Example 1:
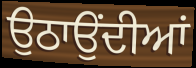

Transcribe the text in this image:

ਉਠਾਉਂਦੀਆਂ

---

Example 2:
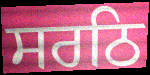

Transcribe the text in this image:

ਸਰਠਿ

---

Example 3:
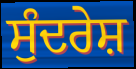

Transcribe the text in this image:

ਸੁੰਦਰੇਸ਼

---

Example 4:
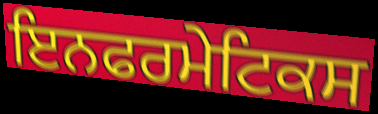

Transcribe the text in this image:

ਇਨਫਰਮੇਟਿਕਸ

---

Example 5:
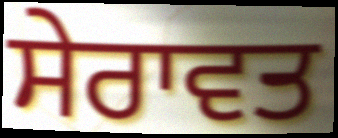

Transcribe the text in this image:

ਸੇਰਾਵਤ